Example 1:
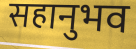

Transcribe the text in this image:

सहानुभव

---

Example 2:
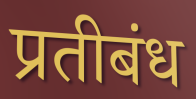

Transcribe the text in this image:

प्रतीबंध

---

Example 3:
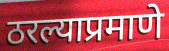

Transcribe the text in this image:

ठरल्याप्रमाणे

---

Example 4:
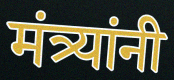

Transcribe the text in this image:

मंत्र्यांनी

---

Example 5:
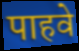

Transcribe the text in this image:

पाहवे